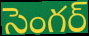
సెంగర్